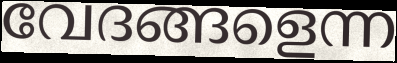
വേദങ്ങളെന്ന